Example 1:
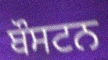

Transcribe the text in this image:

ਬੌਸਟਨ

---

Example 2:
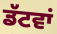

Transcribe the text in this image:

ਡੱਟਵਾਂ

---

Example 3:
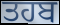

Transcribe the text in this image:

ਤਹਬ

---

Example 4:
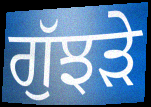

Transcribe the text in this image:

ਗੁੱਝੜੇ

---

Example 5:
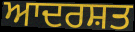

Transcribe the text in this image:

ਆਦਰਸ਼ਤ